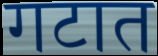
गटात